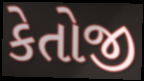
કેતોજી